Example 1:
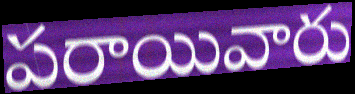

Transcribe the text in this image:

పరాయివారు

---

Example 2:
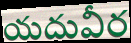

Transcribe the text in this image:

యదువీర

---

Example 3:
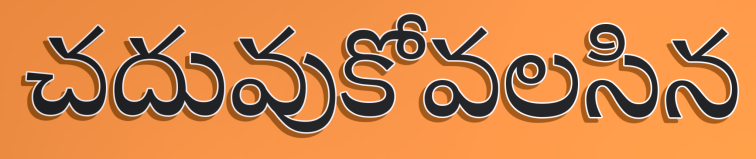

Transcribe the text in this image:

చదువుకోవలసిన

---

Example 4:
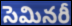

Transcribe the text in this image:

సెమినరీ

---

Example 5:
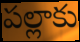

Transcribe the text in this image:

పల్లాకు